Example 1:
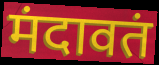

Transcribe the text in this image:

मंदावतं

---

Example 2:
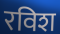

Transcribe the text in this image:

रविश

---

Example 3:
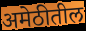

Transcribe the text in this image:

अमेठीतील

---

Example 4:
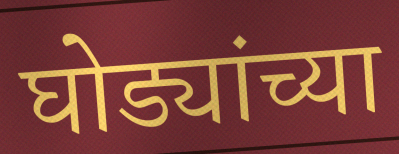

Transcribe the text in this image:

घोड्यांच्या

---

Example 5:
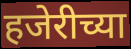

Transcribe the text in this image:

हजेरीच्या